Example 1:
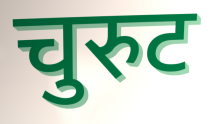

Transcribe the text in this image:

चुरुट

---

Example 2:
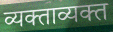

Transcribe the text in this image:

व्यक्ताव्यक्त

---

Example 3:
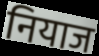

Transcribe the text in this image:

नियाज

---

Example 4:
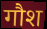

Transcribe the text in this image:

गौश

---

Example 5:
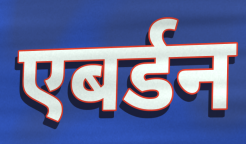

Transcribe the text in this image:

एबर्डन